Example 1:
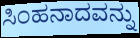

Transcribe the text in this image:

ಸಿಂಹನಾದವನ್ನು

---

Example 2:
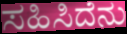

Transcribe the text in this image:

ಸಹಿಸಿದೆನು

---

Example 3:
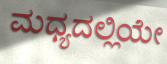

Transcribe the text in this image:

ಮಧ್ಯದಲ್ಲಿಯೇ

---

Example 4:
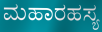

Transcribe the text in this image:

ಮಹಾರಹಸ್ಯ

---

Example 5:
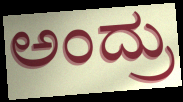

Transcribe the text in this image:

ಅಂದ್ರು